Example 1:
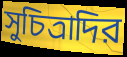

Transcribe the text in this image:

সুচিত্রাদির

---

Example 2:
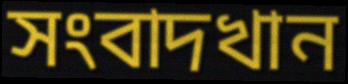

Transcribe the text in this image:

সংবাদখান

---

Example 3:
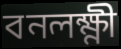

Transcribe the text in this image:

বনলক্ষ্ণী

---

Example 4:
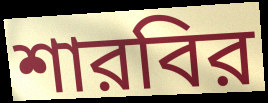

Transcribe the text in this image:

শারবির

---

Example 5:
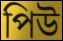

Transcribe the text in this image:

পিউ